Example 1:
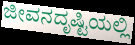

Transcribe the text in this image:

ಜೀವನದೃಷ್ಟಿಯಲ್ಲಿ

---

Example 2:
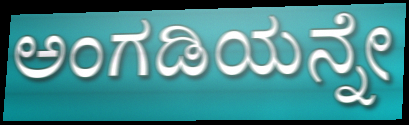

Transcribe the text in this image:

ಅಂಗಡಿಯನ್ನೇ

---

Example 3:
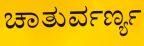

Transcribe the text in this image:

ಚಾತುರ್ವರ್ಣ್ಯ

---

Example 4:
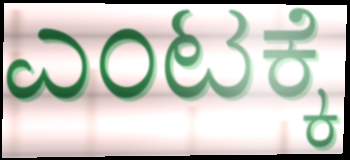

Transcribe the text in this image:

ಎಂಟಕ್ಕೆ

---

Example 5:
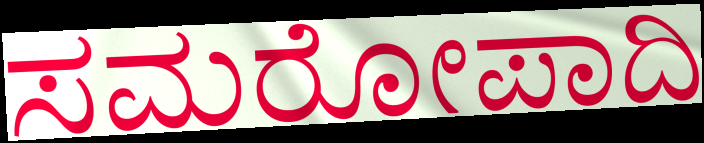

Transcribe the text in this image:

ಸಮರೋಪಾದಿ